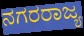
ನಗರರಾಜ್ಯ